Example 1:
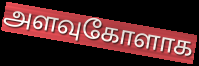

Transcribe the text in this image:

அளவுகோளாக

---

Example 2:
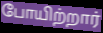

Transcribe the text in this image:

போயிற்றார்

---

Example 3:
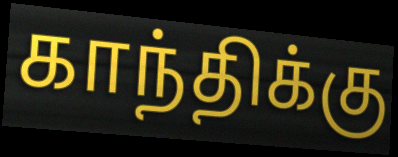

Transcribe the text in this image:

காந்திக்கு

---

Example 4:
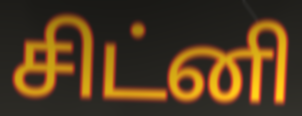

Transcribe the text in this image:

சிட்னி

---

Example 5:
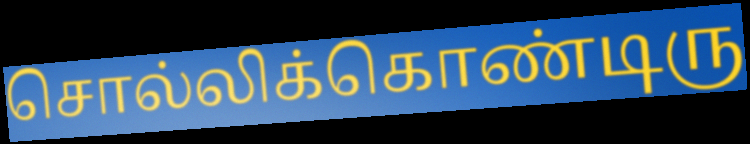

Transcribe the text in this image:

சொல்லிக்கொண்டிரு